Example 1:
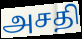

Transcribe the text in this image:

அசதி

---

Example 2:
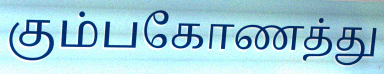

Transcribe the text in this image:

கும்பகோணத்து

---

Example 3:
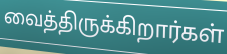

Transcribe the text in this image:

வைத்திருக்கிறார்கள்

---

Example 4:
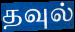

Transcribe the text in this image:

தவுல்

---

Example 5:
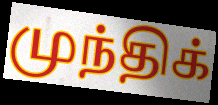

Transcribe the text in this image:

முந்திக்